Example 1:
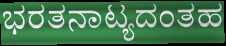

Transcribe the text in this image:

ಭರತನಾಟ್ಯದಂತಹ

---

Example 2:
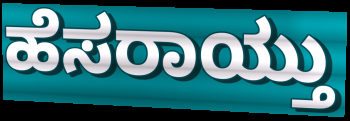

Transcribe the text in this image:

ಹೆಸರಾಯ್ತು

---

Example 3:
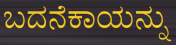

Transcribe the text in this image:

ಬದನೆಕಾಯನ್ನು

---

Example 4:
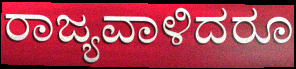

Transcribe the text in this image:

ರಾಜ್ಯವಾಳಿದರೂ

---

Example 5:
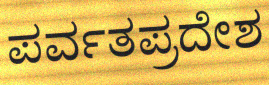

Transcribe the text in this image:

ಪರ್ವತಪ್ರದೇಶ